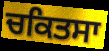
ਚਕਿਤਸਾ